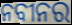
ନବୀନର